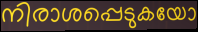
നിരാശപ്പെടുകയോ